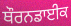
ਥੌਰਨਡਾਈਕ